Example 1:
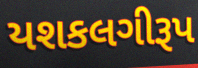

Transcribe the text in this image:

યશકલગીરૂપ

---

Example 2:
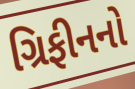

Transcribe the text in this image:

ગ્રિફીનનો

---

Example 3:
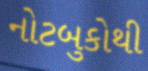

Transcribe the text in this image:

નોટબુકોથી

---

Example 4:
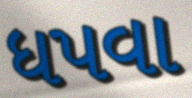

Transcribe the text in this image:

ધપવા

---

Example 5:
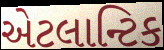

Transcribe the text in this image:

એટલાન્ટિક